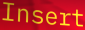
Insert